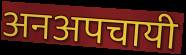
अनअपचायी